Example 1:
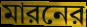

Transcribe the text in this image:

মারনের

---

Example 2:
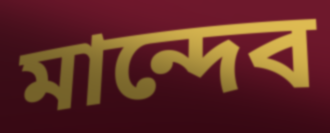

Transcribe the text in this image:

মান্দেব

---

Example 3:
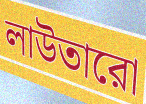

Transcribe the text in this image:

লাউতারো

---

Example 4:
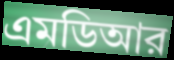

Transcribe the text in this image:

এমডিআর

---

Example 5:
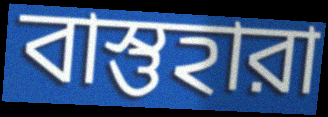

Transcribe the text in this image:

বাস্তুহারা